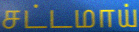
சட்டமாய்